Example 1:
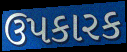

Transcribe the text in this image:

ઉપકારક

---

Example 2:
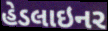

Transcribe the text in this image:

હેડલાઇનર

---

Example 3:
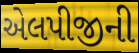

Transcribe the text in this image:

એલપીજીની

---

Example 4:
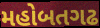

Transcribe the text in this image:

મહોબતગઢ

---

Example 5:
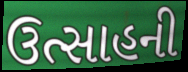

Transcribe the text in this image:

ઉત્સાહની